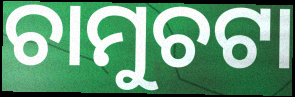
ଚାମୁଚଟା